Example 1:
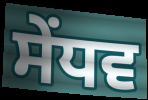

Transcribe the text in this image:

ਸੇਂਧਵ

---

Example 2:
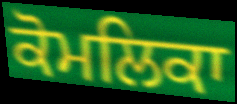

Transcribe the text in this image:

ਕੋਮਲਿਕਾ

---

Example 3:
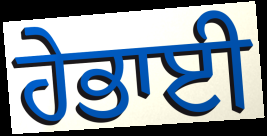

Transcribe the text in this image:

ਹੇਭਾਈ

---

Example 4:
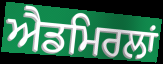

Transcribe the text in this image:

ਐਡਮਿਰਲਾਂ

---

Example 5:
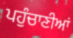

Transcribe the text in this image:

ਪਹੁੰਚਾਣੀਆਂ